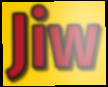
Jiw